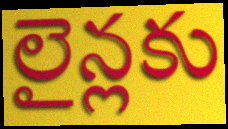
లైన్లకు